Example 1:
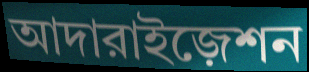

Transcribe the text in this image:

আদারাইজ়েশন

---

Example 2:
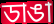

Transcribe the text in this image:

ডাঙা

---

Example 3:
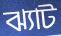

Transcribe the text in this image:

ঝ্যাট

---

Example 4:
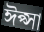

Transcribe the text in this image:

ঈপ্সা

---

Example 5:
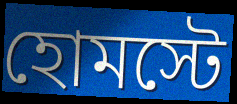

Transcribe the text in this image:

হোমস্টে